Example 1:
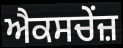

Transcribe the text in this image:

ਐਕਸਚੇਂਜ਼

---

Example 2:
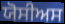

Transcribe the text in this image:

ਯੋਸੀਅਸ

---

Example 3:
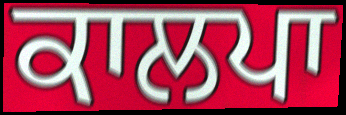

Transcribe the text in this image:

ਕਾਲਪਾ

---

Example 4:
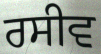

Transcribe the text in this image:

ਰਸੀਵ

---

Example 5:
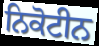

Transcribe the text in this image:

ਨਿਕੋਟੀਨ